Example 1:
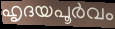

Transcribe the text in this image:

ഹൃദയപൂർവം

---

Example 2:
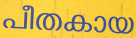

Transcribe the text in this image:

പീതകായ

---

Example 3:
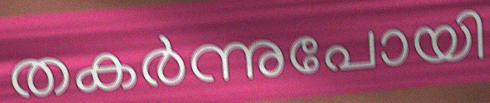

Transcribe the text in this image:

തകർന്നുപോയി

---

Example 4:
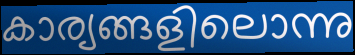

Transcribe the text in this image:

കാര്യങ്ങളിലൊന്നു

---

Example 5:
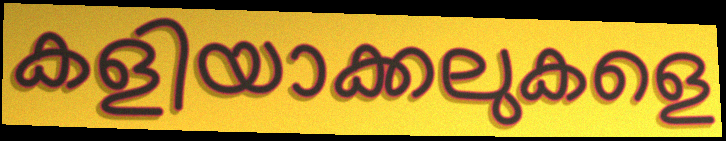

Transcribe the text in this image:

കളിയാക്കലുകളെ